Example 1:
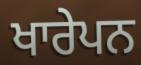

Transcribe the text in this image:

ਖਾਰੇਪਨ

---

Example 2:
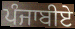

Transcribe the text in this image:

ਪੰਜਾਬੀਏ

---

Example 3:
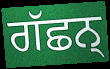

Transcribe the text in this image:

ਗੱਛਨ੍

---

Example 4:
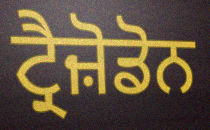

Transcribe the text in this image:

ਟ੍ਰੈਜ਼ੋਡੋਨ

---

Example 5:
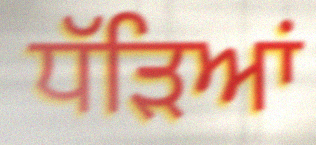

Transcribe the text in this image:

ਧੱੜਿਆਂ